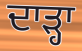
ਦਾੜ੍ਹਾ